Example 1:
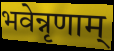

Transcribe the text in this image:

भवेन्नृणाम्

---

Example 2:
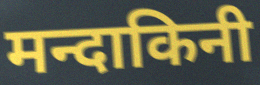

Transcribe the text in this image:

मन्दाकिनी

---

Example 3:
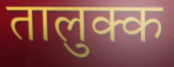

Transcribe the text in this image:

तालुक्क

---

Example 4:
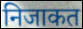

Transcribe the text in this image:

निजाकत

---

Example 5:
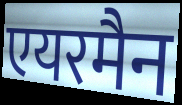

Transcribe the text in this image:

एयरमैन